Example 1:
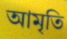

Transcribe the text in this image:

আমৃতি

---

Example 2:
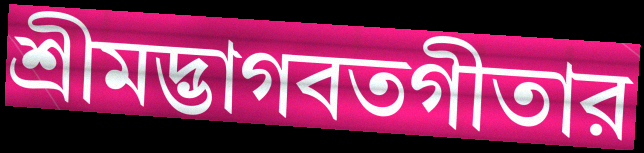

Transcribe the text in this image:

শ্রীমদ্ভাগবতগীতার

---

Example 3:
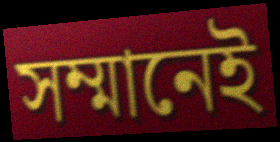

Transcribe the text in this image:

সম্মানেই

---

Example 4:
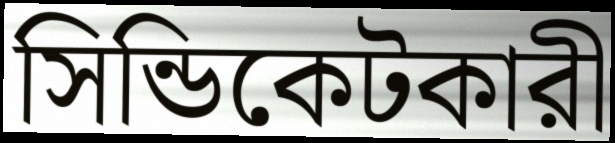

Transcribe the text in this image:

সিন্ডিকেটকারী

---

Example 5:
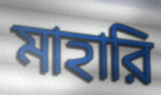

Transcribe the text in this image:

মাহারি